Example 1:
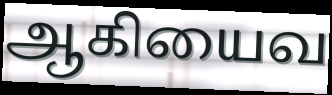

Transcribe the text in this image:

ஆகியைவ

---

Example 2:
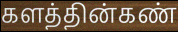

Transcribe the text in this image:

களத்தின்கண்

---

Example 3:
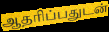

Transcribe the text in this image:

ஆதரிப்பதுடன்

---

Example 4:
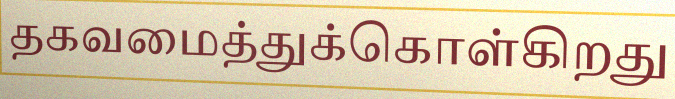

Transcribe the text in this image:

தகவமைத்துக்கொள்கிறது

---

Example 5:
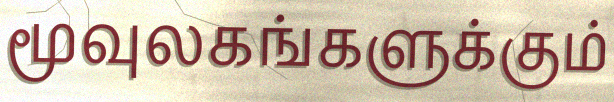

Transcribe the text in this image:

மூவுலகங்களுக்கும்